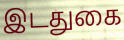
இடதுகை